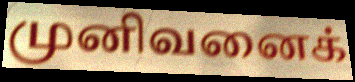
முனிவனைக்